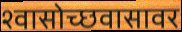
श्वासोच्छवासावर